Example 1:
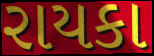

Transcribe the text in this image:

રાયકા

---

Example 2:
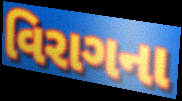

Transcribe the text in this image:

વિરાગના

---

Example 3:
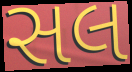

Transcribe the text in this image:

સલ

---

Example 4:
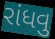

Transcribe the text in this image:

રાંધવુ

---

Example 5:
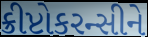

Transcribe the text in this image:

ક્રીપ્ટોકરન્સીને